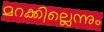
മറക്കില്ലെന്നും